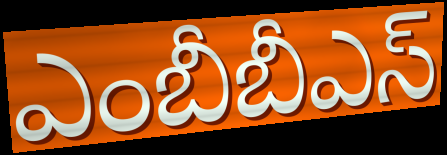
ఎంబీబీఎస్